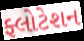
ફ્લોટેશન